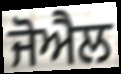
ਜੋਐਲ